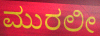
ಮುರಲೀ